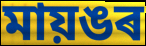
মায়ঙৰ